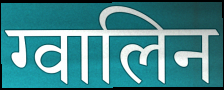
ग्वालिन